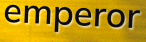
emperor